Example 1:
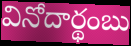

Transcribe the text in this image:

వినోదార్థంబు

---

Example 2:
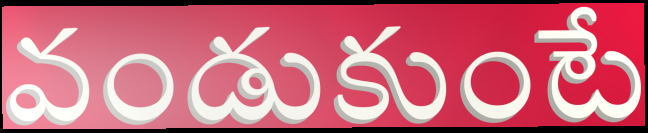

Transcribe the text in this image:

వండుకుంటే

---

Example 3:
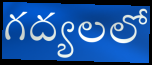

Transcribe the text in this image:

గద్యలలో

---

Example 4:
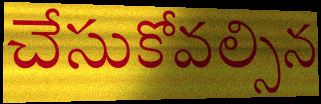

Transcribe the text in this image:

చేసుకోవల్సిన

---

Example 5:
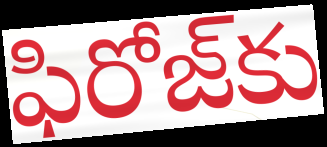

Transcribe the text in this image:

ఫిరోజ్‌కు